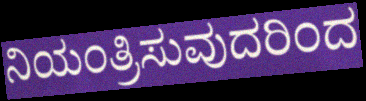
ನಿಯಂತ್ರಿಸುವುದರಿಂದ